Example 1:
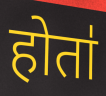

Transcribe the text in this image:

होता॑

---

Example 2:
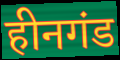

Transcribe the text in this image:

हीनगंड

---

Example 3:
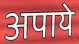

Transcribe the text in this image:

अपाये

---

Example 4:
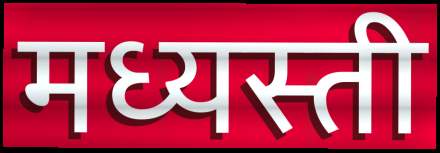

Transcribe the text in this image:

मध्यस्ती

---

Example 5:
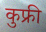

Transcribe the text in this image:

कुफ्री